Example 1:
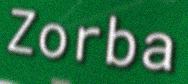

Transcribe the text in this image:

Zorba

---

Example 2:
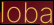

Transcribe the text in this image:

loba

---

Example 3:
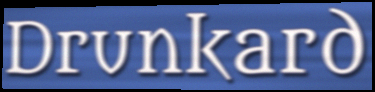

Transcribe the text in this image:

Drunkard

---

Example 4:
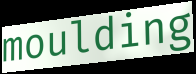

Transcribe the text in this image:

moulding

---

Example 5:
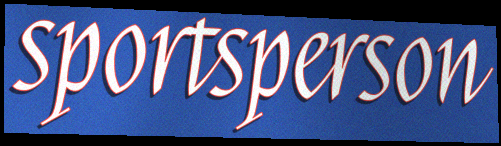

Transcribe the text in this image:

sportsperson